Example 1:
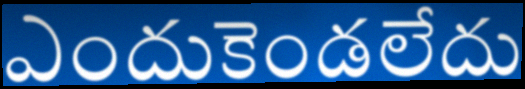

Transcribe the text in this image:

ఎందుకెండలేదు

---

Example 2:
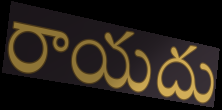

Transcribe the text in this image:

రాయదు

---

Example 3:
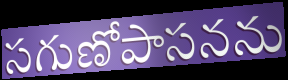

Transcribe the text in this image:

సగుణోపాసనను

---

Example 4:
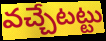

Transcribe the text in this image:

వచ్చేటట్టు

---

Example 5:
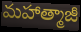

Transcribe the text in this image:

మహాత్మాజీ